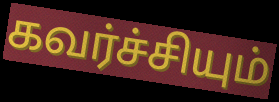
கவர்ச்சியும்